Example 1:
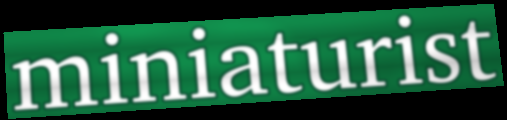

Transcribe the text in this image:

miniaturist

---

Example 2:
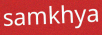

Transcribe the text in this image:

samkhya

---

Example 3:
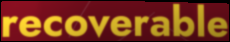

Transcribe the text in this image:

recoverable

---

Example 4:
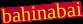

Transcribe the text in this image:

bahinabai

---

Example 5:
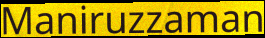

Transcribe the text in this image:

Maniruzzaman